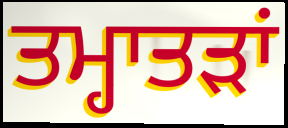
ਤਮ੍ਹਾਤੜਾਂ